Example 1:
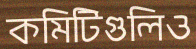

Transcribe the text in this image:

কমিটিগুলিও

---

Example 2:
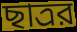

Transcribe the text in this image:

ছাত্রর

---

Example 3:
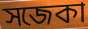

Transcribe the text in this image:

সজেকা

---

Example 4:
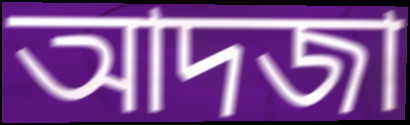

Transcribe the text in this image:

আদজা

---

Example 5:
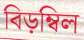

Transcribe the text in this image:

বিড়ম্বিল